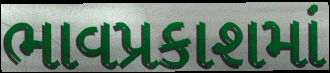
ભાવપ્રકાશમાં